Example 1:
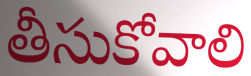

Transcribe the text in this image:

తీసుకోవాలి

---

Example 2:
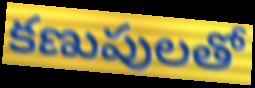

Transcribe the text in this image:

కణుపులతో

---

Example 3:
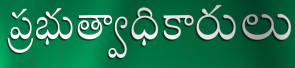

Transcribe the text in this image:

ప్రభుత్వాధికారులు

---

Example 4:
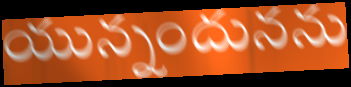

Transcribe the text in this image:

యున్నందునను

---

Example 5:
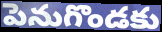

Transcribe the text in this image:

పెనుగొండకు